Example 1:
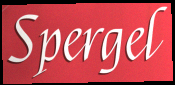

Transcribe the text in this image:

Spergel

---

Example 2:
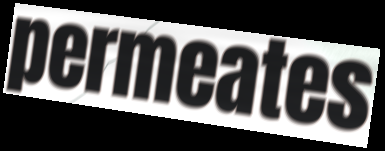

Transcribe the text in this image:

permeates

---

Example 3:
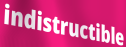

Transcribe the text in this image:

indistructible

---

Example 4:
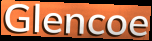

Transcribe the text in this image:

Glencoe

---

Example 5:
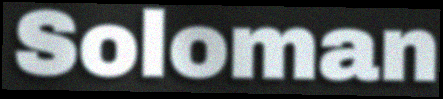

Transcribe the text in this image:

Soloman